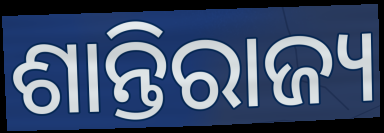
ଶାନ୍ତିରାଜ୍ୟ